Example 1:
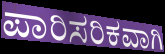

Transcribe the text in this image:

ಪಾರಿಸರಿಕವಾಗಿ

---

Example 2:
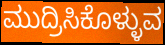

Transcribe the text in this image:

ಮುದ್ರಿಸಿಕೊಳ್ಳುವ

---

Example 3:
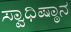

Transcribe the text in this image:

ಸ್ವಾಧಿಷ್ಠಾನ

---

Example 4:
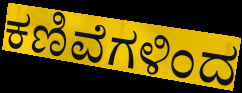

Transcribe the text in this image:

ಕಣಿವೆಗಳಿಂದ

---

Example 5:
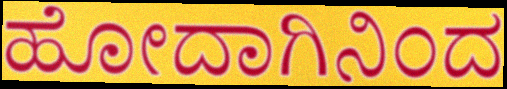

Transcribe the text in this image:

ಹೋದಾಗಿನಿಂದ